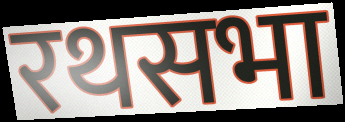
रथसभा